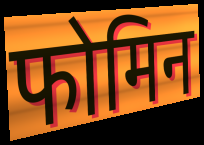
फोमिन